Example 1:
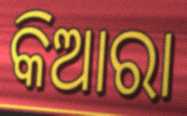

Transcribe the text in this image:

କିଆରା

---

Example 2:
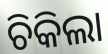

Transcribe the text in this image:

ଚିକିଲା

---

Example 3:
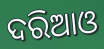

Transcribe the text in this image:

ଦରିଆଓ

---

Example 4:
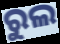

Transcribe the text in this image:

ରୁଲ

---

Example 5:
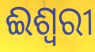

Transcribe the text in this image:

ଈଶ୍ଵରୀ